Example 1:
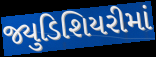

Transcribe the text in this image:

જ્યુડિશિયરીમાં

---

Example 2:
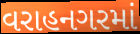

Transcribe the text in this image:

વરાહનગરમાં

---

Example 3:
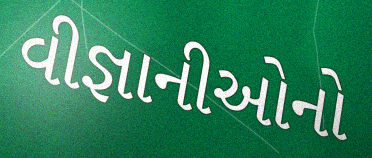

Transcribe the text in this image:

વીજ્ઞાનીઓનો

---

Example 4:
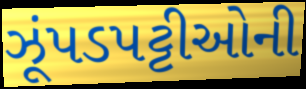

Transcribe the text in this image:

ઝૂંપડપટ્ટીઓની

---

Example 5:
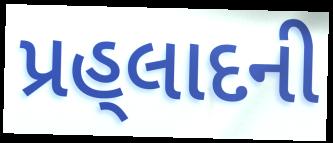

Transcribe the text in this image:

પ્રહ્‌લાદની